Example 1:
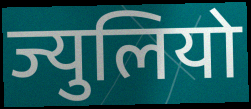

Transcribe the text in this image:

ज्युलियो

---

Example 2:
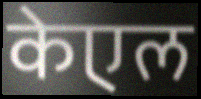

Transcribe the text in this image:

केएल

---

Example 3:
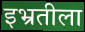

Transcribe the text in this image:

इभ्रतीला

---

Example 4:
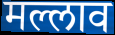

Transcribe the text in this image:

मल्लाव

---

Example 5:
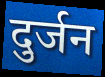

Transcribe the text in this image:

दुर्जन